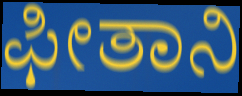
ಫೀತಾನಿ